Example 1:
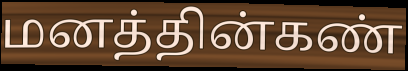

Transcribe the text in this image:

மனத்தின்கண்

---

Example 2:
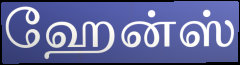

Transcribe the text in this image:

ஹேன்ஸ்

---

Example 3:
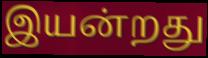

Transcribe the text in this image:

இயன்றது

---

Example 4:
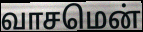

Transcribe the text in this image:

வாசமென்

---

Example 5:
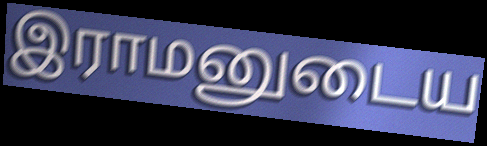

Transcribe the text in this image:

இராமனுடைய